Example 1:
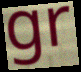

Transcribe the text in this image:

gr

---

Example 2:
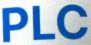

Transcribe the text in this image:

PLC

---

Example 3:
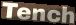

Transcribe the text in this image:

Tench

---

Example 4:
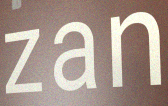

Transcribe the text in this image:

zan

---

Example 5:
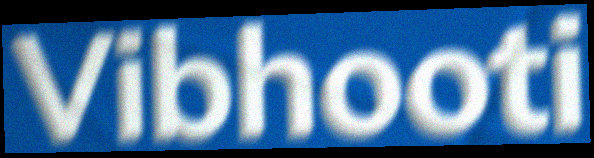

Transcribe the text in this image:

Vibhooti